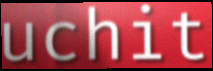
uchit